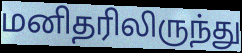
மனிதரிலிருந்து